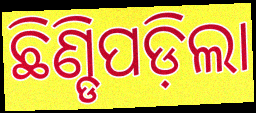
ଛିଣ୍ଡିପଡ଼ିଲା